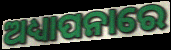
ଅଧ୍ୟାପନାରେ